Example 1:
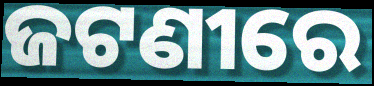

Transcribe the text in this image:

ଜଟଣୀରେ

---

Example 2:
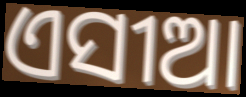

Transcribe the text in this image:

ଏସୀଆ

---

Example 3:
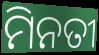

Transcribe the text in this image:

ମିନତୀ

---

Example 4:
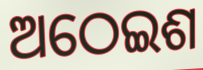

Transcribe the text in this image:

ଅଠେଇଶ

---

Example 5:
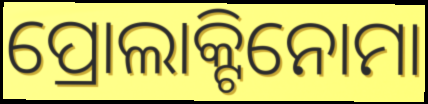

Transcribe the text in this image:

ପ୍ରୋଲାକ୍ଟିନୋମା